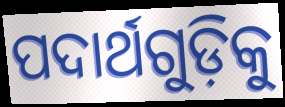
ପଦାର୍ଥଗୁଡ଼ିକୁ